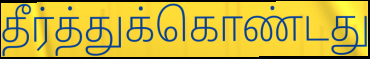
தீர்த்துக்கொண்டது